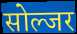
सोल्जर